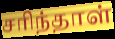
சரிந்தாள்